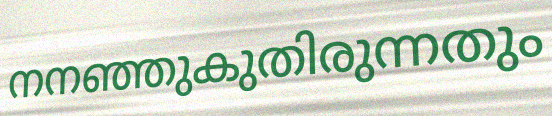
നനഞ്ഞുകുതിരുന്നതും